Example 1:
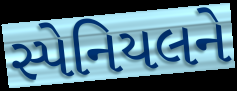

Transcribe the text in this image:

સ્પેનિયલને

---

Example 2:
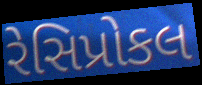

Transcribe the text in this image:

રેસિપ્રોકલ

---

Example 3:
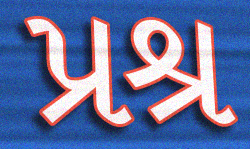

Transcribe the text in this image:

પ્રશ્ર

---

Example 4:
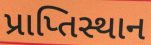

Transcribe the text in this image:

પ્રાપ્તિસ્થાન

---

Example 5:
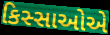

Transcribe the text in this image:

કિસ્સાઓએ